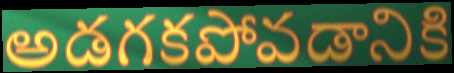
అడగకపోవడానికి